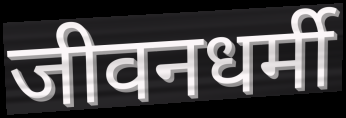
जीवनधर्मी